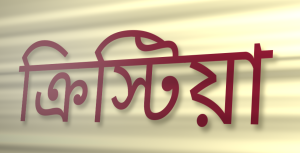
ক্রিস্টিয়া